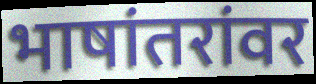
भाषांतरांवर